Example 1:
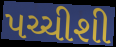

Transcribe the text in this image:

પચ્ચીશી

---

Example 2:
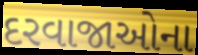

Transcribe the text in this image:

દરવાજાઓના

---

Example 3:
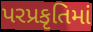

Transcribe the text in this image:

પરપ્રકૃતિમાં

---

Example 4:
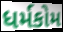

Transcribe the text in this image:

ધર્મકોમ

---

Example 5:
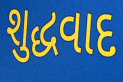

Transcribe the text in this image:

શુદ્ધવાદ